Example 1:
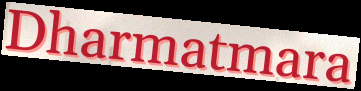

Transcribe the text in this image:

Dharmatmara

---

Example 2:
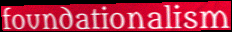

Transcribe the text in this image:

foundationalism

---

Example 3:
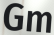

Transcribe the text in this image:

Gm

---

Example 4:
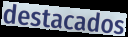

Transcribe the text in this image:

destacados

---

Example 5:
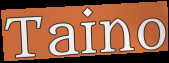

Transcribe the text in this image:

Taino